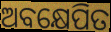
ଅବକ୍ଷେପିତ